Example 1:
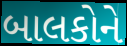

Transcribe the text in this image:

બાલકોને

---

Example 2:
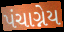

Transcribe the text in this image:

પંચાગ્નેય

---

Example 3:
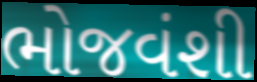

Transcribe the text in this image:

ભોજવંશી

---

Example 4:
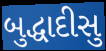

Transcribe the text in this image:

બુદ્ધાદીસુ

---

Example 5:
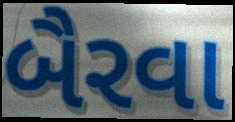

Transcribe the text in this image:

બૈરવા